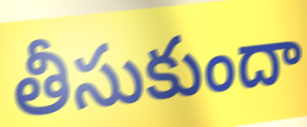
తీసుకుందా